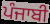
ਪੰਜਾਬੀ